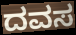
ದವಸ